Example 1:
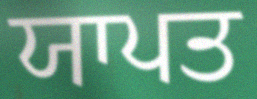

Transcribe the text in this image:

ਯਾਪਤ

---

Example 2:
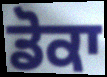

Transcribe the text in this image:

ਡੋਕਾ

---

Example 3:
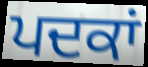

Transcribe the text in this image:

ਪਦਕਾਂ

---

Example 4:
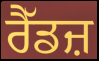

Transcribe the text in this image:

ਰੈੱਡਜ਼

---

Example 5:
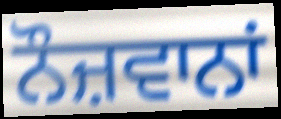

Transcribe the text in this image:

ਨੌਜ਼ਵਾਨਾਂ